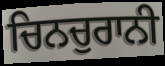
ਚਿਨਚੁਰਾਨੀ